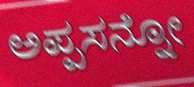
ಅಪ್ಪಸನ್ನೋ